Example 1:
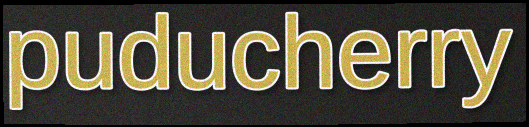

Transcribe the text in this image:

puducherry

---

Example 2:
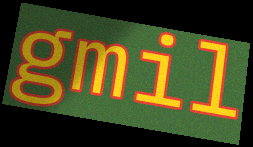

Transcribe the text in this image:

gmil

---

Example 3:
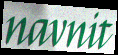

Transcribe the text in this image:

navnit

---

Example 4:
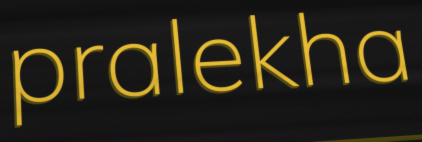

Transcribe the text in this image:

pralekha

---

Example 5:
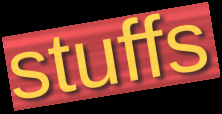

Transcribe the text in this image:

stuffs